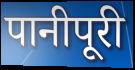
पानीपूरी